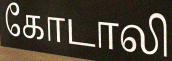
கோடாலி